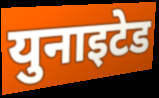
युनाइटेड